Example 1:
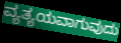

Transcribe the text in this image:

ವ್ಯತ್ಯಯವಾಗುವುದು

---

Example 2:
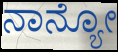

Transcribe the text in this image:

ನಾನ್ಯೋ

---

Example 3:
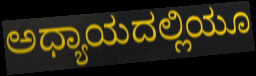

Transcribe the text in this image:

ಅಧ್ಯಾಯದಲ್ಲಿಯೂ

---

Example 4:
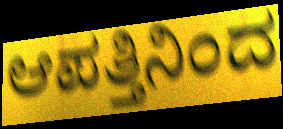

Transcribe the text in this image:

ಆಪತ್ತಿನಿಂದ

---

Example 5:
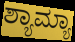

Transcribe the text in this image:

ಶ್ಯಾಮ್ಯಾ